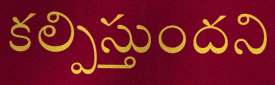
కల్పిస్తుందని